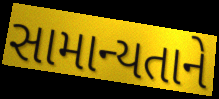
સામાન્યતાને